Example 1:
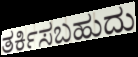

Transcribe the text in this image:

ತರ್ಕಿಸಬಹುದು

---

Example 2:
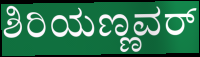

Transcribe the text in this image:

ಶಿರಿಯಣ್ಣವರ್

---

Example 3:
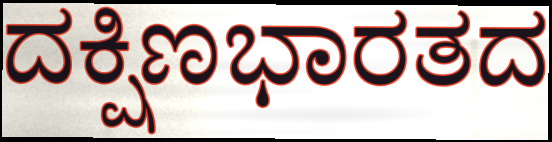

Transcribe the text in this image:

ದಕ್ಷಿಣಭಾರತದ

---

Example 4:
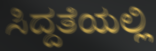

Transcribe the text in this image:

ಸಿದ್ದತೆಯಲ್ಲಿ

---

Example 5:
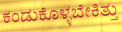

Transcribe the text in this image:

ಕಂಡುಕೊಳ್ಳಬೇಕಿತ್ತು